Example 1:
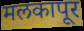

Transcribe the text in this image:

मलकापूर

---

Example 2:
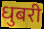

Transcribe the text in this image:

धुबरी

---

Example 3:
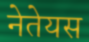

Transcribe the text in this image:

नेतेयस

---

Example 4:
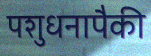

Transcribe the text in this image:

पशुधनापैकी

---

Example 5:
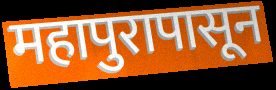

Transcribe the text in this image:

महापुरापासून